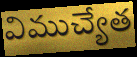
విముచ్యేత